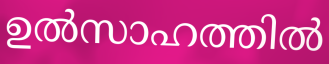
ഉൽസാഹത്തിൽ